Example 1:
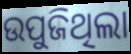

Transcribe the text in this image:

ଉପୁଜିଥିଲା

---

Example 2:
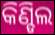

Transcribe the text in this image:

କିଣ୍ଡିଲ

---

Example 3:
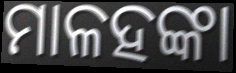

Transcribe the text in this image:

ମାଳହଙ୍କା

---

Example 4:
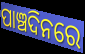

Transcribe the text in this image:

ପାଞ୍ଚଦିନରେ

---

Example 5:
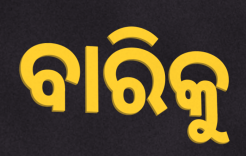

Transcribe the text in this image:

ବାରିକୁ